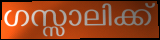
ഗസ്സാലിക്ക്